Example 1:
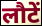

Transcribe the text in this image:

लौटें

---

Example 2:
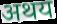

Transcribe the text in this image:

अथय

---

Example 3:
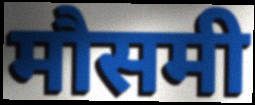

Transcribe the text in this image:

मौसमी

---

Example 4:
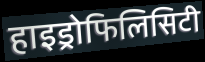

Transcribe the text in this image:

हाइड्रोफिलिसिटी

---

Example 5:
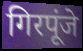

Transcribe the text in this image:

गिरपूंजे